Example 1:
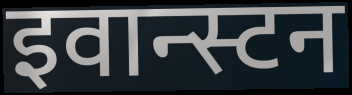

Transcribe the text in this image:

इवान्स्टन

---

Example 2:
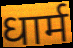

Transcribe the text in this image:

धार्म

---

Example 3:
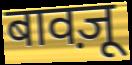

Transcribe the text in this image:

बावज़ू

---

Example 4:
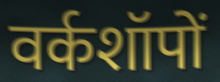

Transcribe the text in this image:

वर्कशॉपों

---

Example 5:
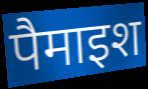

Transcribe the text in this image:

पैमाइश